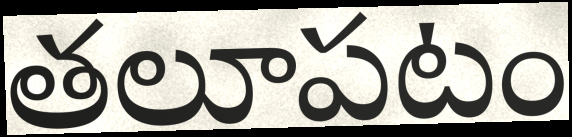
తలూపటం